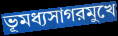
ভূমধ্যসাগরমুখে